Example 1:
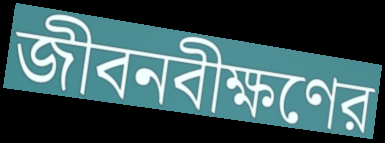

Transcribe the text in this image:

জীবনবীক্ষণের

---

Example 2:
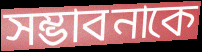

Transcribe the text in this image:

সম্ভাবনাকে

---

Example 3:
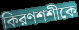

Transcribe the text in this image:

কিরণশশীকে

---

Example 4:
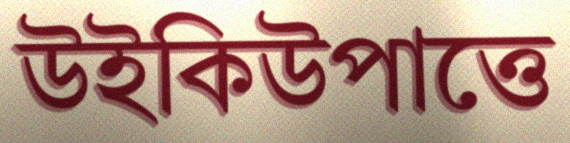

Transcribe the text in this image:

উইকিউপাত্তে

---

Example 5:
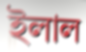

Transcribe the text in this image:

ইলাল